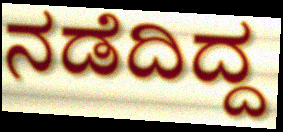
ನಡೆದಿದ್ದ